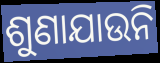
ଶୁଣାଯାଉନି